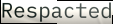
Respacted